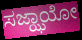
ಸಜ್ಝಾಯೋ